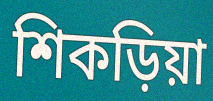
শিকড়িয়া